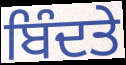
ਬਿੰਦਤੇ